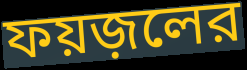
ফয়জ়লের